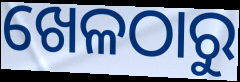
ଖେଳଠାରୁ